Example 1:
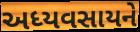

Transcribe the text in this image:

અધ્યવસાયને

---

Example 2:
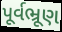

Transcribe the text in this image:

પૂર્વભ્રૂણ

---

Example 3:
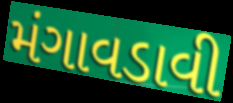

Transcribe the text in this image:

મંગાવડાવી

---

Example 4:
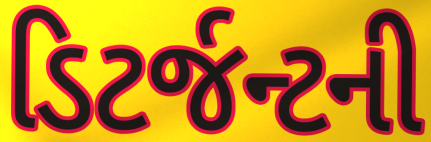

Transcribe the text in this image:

ડિટર્જન્ટની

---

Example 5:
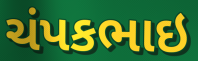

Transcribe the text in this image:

ચંપકભાઇ